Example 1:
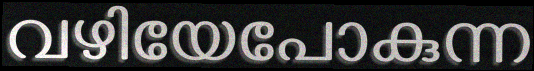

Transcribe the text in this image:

വഴിയേപോകുന്ന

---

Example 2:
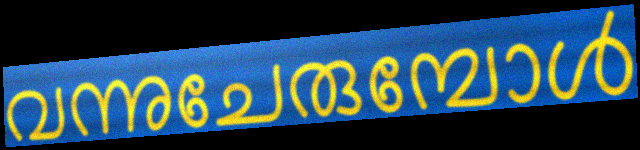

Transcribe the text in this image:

വന്നുചേരുമ്പോൾ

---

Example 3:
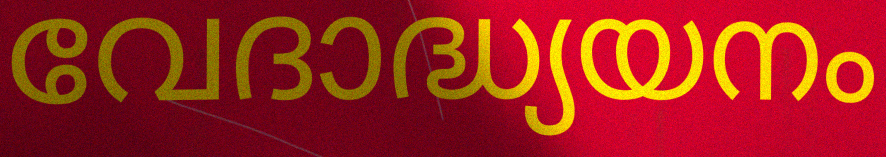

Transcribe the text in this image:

വേദാദ്ധ്യയനം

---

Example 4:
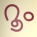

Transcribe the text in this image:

റൂം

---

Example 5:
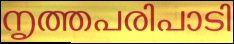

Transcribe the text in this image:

നൃത്തപരിപാടി